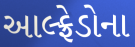
આલ્ફ્રેડોના